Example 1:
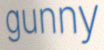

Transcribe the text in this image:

gunny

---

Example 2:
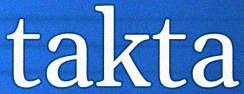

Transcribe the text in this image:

takta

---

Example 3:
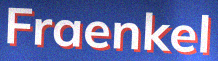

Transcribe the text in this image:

Fraenkel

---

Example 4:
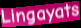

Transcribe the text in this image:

Lingayats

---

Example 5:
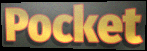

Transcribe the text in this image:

Pocket